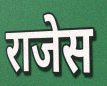
राजेस